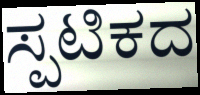
ಸ್ಪಟಿಕದ